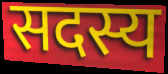
सदस्य